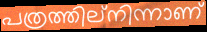
പത്രത്തില്നിന്നാണ്